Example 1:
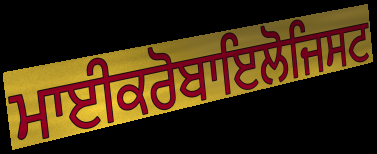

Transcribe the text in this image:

ਮਾਈਕਰੋਬਾਇਲੋਜਿਸਟ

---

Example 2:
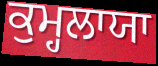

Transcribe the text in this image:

ਕੁਮ੍ਹਲਾਯਾ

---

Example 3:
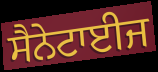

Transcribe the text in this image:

ਸੈਨੇਟਾਈਜ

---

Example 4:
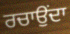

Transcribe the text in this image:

ਰਚਾਉਂਦਾ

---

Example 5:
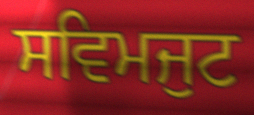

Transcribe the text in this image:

ਸਵਿਮਜੁਟ